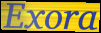
Exora